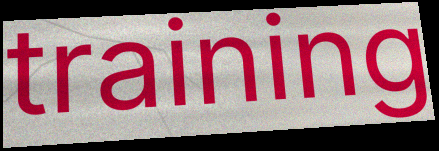
training